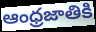
ఆంధ్రజాతికి